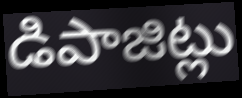
డిపాజిట్లు